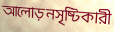
আলোড়নসৃষ্টিকারী